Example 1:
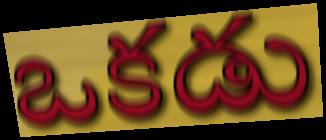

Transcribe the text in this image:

ఒకడు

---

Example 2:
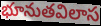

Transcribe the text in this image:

భూనుతవిలాస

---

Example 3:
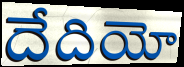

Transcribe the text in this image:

దేదియో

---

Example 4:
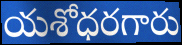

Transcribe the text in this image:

యశోధరగారు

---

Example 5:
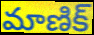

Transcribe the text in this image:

మాణిక్